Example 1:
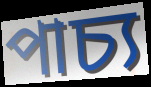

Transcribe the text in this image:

পাচ্য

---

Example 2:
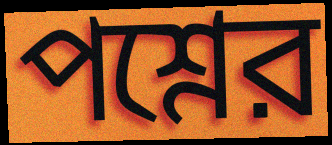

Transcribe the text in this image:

পশ্নের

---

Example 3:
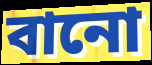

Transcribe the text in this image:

বানো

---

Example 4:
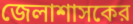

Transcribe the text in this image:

জেলাশাসকের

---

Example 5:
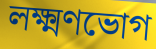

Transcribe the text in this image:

লক্ষ্মণভোগ